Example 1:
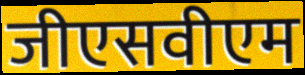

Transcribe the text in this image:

जीएसवीएम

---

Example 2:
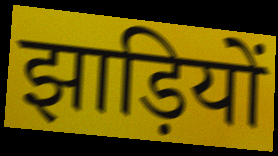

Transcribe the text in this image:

झाड़ियों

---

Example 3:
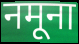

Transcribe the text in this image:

नमूना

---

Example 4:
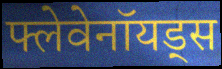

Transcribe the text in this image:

फ्लेवेनॉयड्स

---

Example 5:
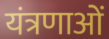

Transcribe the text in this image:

यंत्रणाओं